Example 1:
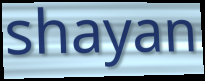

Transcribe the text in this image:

shayan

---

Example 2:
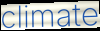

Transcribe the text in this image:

climate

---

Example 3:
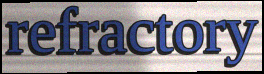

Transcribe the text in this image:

refractory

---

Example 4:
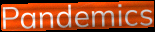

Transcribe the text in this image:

Pandemics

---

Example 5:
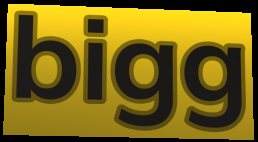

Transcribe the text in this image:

bigg